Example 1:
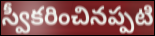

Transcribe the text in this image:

స్వీకరించినప్పటి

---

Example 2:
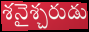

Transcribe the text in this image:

శనైశ్చరుడు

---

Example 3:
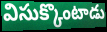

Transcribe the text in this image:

విసుక్కొంటాడు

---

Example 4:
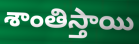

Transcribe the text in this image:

శాంతిస్తాయి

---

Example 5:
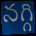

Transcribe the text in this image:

నగ్గి